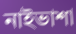
নাইভাশা